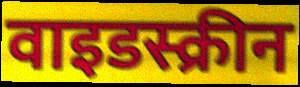
वाइडस्क्रीन